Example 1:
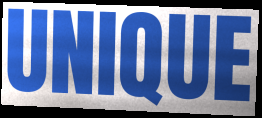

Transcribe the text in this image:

UNIQUE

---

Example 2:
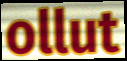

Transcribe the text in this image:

ollut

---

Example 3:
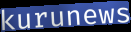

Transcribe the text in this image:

kurunews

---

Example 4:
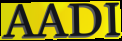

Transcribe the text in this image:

AADI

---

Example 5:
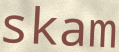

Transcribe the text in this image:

skam